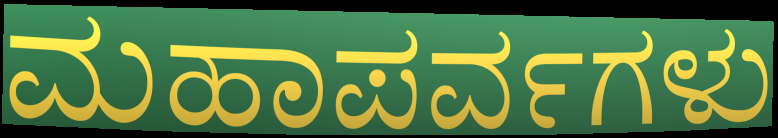
ಮಹಾಪರ್ವಗಳು